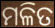
ମଳିତ